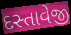
દસ્તાવેજી